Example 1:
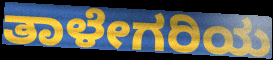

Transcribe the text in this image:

ತಾಳೇಗರಿಯ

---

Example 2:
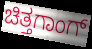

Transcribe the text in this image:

ಚಿತ್ತಗಾಂಗ್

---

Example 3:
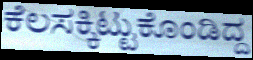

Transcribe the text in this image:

ಕೆಲಸಕ್ಕಿಟ್ಟುಕೊಂಡಿದ್ದ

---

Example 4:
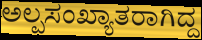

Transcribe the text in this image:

ಅಲ್ಪಸಂಖ್ಯಾತರಾಗಿದ್ದ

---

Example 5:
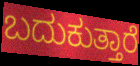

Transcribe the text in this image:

ಬದುಕುತ್ತಾರೆ